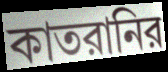
কাতরানির